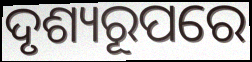
ଦୃଶ୍ୟରୂପରେ